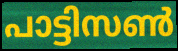
പാട്ടിസൺ